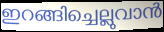
ഇറങ്ങിച്ചെല്ലുവാൻ